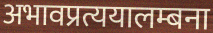
अभावप्रत्ययालम्बना